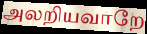
அலறியவாறே